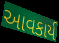
આવકાર્ય